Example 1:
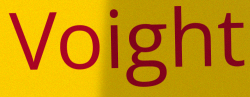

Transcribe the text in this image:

Voight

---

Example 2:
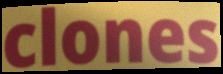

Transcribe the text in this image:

clones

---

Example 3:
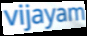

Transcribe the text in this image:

vijayam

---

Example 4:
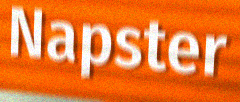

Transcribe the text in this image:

Napster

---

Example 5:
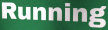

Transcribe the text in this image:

Running